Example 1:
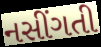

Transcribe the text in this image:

નસીંગતી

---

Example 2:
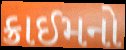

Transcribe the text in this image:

ક્રાઈમનો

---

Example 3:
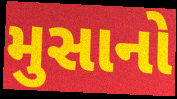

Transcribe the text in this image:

મુસાનો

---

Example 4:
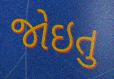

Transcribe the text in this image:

જોઇતુ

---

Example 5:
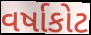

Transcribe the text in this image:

વર્ષાકોટ